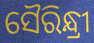
ସୈରିନ୍ଧ୍ରୀ